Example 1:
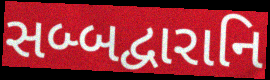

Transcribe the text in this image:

સબ્બદ્વારાનિ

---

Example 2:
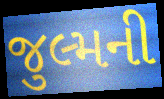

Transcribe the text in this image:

જુલ્મની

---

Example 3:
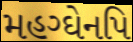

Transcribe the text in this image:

મહગ્ઘેનપિ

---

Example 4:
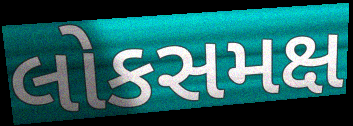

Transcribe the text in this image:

લોકસમક્ષ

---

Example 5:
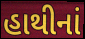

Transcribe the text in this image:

હાથીનાં